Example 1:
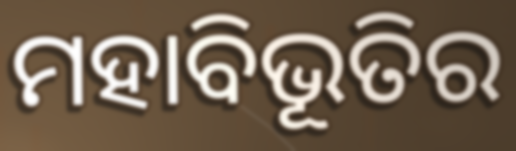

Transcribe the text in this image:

ମହାବିଭୂତିର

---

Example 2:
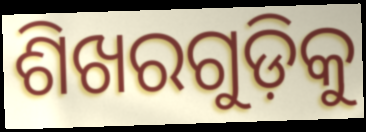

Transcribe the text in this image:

ଶିଖରଗୁଡ଼ିକୁ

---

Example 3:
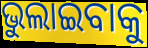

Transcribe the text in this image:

ଭୁଲାଇବାକୁ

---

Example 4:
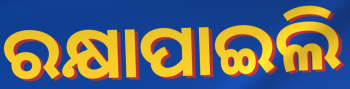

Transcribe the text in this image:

ରକ୍ଷାପାଇଲି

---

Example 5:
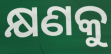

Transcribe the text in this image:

କ୍ଷଣକୁ